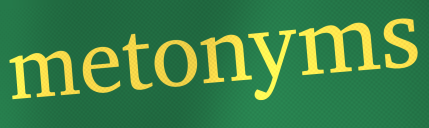
metonyms